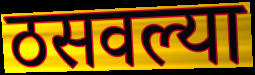
ठसवल्या